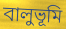
বালুভূমি